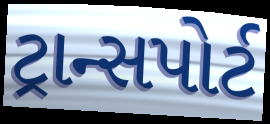
ટ્રાન્સપોર્ટ